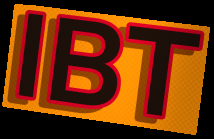
IBT